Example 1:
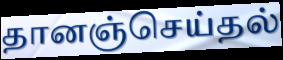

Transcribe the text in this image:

தானஞ்செய்தல்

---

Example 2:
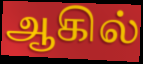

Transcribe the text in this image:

ஆகில்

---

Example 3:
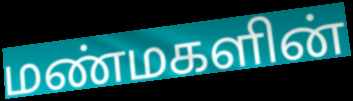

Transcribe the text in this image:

மண்மகளின்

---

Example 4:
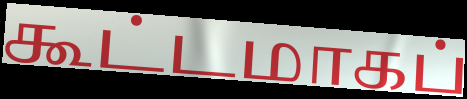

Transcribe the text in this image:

கூட்டமாகப்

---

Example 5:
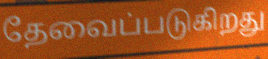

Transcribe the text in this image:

தேவைப்படுகிறது